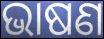
ଭାଷଣ